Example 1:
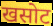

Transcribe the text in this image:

खसोट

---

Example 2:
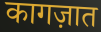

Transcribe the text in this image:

कागज़ात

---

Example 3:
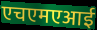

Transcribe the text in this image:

एचएमएआई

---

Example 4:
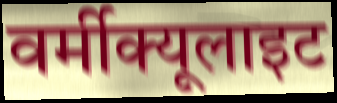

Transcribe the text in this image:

वर्मीक्यूलाइट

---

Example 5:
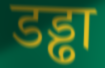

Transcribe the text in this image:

डड्ढा